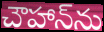
చౌహాన్‌ను